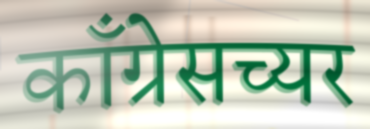
काँग्रेसच्यर